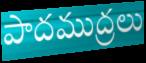
పాదముద్రలు